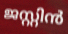
ജസ്റ്റിൻ